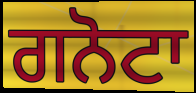
ਗਨੋਟਾ